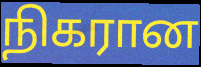
நிகரான